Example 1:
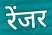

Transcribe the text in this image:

रेंजर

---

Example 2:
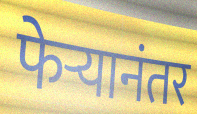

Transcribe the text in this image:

फेऱ्यानंतर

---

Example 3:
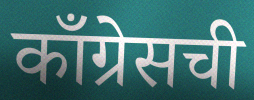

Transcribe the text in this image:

काँग्रेसची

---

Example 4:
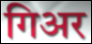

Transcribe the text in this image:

गिअर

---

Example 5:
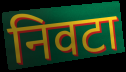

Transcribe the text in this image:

निवटा